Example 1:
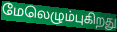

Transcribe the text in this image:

மேலெழும்புகிறது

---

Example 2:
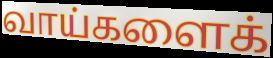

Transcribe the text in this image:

வாய்களைக்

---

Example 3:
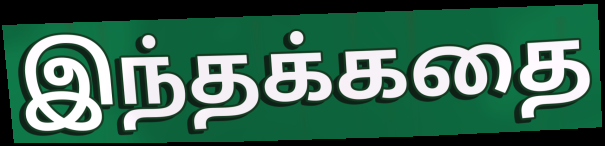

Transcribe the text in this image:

இந்தக்கதை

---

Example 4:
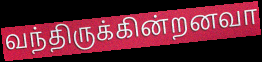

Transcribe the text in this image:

வந்திருக்கின்றனவா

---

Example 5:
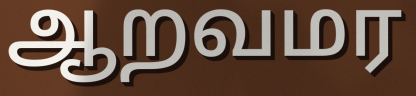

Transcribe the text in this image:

ஆறவமர